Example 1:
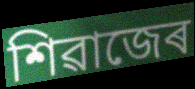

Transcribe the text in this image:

শিৱাজেৰ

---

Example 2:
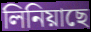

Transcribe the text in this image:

লিনিয়াছে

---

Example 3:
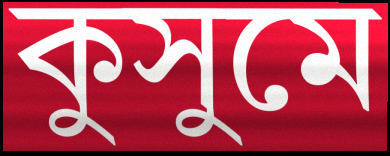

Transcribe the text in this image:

কুসুমে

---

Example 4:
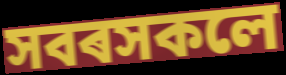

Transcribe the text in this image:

সবৰসকলে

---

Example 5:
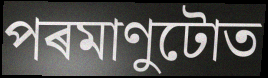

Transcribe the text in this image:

পৰমাণুটোত